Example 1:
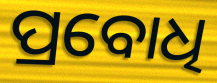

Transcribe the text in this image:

ପ୍ରବୋଧି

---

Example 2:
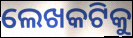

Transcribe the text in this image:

ଲେଖକଟିକୁ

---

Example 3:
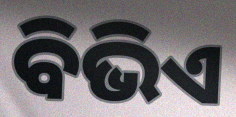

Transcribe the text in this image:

ବିଭିଏ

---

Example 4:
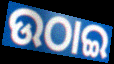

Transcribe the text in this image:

ଉଠାଇ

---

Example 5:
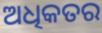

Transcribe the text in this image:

ଅଧିକତର